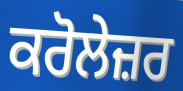
ਕਰੋਲੇਜ਼ਰ